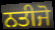
ਨਤੀਜੋ